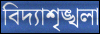
বিদ্যাশৃঙ্খলা